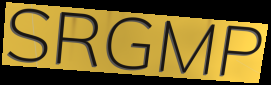
SRGMP